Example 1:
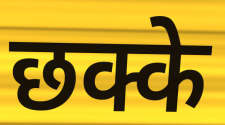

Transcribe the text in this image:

छक्के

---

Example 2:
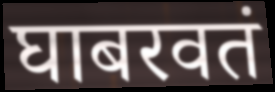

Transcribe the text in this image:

घाबरवतं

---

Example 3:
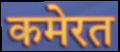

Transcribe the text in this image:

कमेरत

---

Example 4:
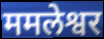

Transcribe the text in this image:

ममलेश्वर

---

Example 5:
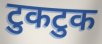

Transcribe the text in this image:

टुकटुक